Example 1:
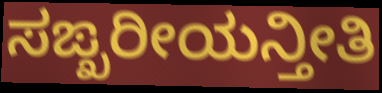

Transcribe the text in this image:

ಸಙ್ಖರೀಯನ್ತೀತಿ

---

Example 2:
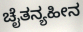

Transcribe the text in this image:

ಚೈತನ್ಯಹೀನ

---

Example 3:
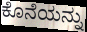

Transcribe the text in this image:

ಕೊನೆಯನ್ನು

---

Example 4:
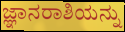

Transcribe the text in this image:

ಜ್ಞಾನರಾಶಿಯನ್ನು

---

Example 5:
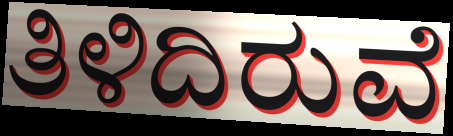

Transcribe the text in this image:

ತಿಳಿದಿರುವೆ